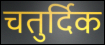
चतुर्दिक